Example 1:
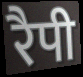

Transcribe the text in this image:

रैपी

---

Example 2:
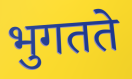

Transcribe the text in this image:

भुगतते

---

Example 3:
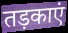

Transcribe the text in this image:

तड़काएं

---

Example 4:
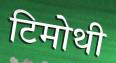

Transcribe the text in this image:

टिमोथी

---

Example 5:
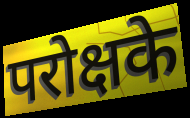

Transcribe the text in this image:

परोक्षके